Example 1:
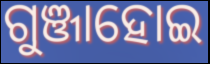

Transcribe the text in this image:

ଗୁଞ୍ଜାହୋଇ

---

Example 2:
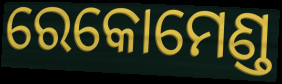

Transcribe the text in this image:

ରେକୋମେଣ୍ଡ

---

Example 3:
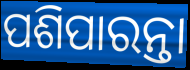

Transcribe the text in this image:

ପଶିପାରନ୍ତା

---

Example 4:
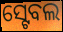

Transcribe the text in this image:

ସ୍ଟେବଲ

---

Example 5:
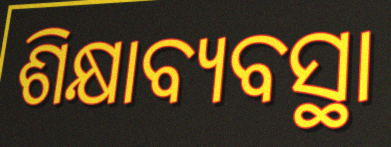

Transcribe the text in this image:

ଶିକ୍ଷାବ୍ୟବସ୍ଥା